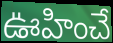
ఊహించే